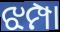
ଝମ୍ପା